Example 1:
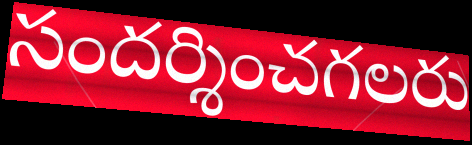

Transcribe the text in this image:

సందర్శించగలరు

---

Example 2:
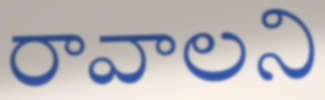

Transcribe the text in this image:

రావాలని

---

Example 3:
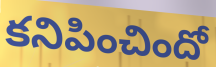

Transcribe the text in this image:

కనిపించిందో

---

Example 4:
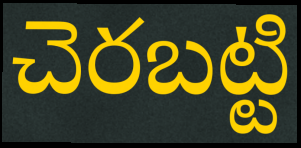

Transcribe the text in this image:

చెరబట్టి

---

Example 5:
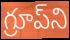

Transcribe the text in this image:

గ్రూప్‌ని